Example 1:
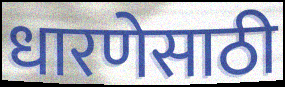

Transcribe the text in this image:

धारणेसाठी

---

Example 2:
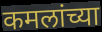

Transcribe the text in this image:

कमलांच्या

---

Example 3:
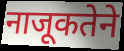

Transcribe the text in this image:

नाजूकतेने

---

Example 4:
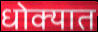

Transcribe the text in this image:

धोक्‍यात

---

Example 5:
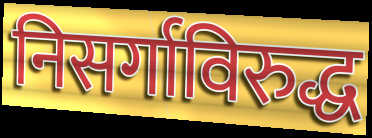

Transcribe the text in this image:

निसर्गाविरुद्ध